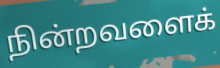
நின்றவளைக்